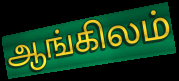
ஆங்கிலம்